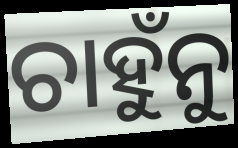
ଚାହୁଁନୁ